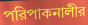
পরিপাকনালীর